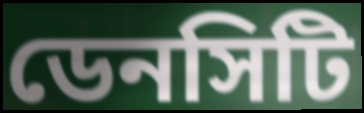
ডেনসিটি